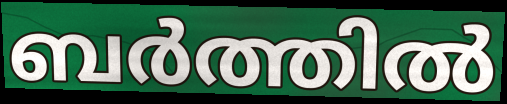
ബർത്തിൽ